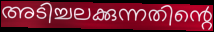
അടിച്ചലക്കുന്നതിന്റെ